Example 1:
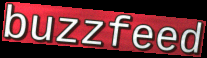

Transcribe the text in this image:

buzzfeed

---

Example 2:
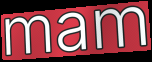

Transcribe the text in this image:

mam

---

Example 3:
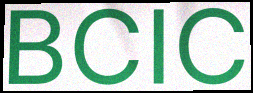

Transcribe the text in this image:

BCIC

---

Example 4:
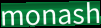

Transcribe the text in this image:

monash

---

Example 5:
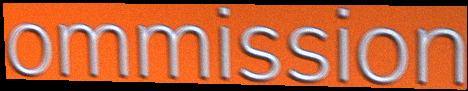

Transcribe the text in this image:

ommission